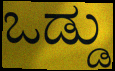
ಒಡ್ಡು